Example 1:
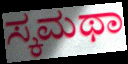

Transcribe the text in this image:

ಸ್ಕಮಥಾ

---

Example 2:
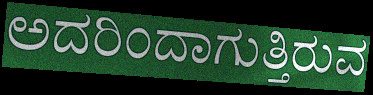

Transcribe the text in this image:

ಅದರಿಂದಾಗುತ್ತಿರುವ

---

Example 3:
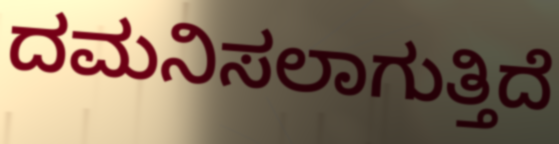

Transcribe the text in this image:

ದಮನಿಸಲಾಗುತ್ತಿದೆ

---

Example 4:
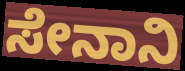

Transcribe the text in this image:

ಸೇನಾನಿ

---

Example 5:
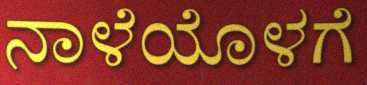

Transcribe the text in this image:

ನಾಳೆಯೊಳಗೆ